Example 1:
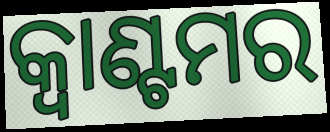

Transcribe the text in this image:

କ୍ୱାଣ୍ଟମର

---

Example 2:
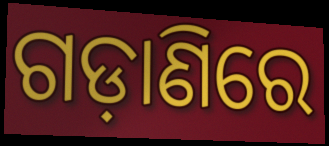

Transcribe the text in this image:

ଗଡ଼ାଣିରେ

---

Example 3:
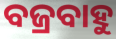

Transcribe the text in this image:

ବଜ୍ରବାହୁ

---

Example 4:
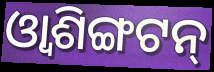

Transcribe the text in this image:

ଓ୍ୱାଶିଙ୍ଗଟନ୍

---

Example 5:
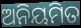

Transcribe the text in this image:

ଅନିୟମିତ